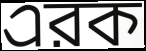
এরক